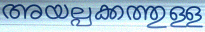
അയല്പക്കത്തുള്ള